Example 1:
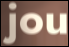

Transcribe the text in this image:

jou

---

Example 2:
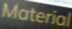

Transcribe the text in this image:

Material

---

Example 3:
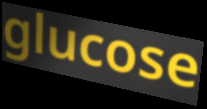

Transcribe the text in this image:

glucose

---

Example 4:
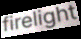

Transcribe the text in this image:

firelight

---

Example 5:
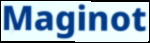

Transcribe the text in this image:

Maginot